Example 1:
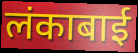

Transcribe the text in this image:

लंकाबाई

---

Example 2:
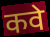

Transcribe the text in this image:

कवे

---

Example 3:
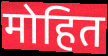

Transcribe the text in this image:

मोहित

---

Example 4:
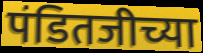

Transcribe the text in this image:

पंडितजीच्या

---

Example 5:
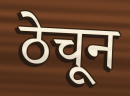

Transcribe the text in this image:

ठेचून